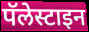
पॅलेस्टाइन